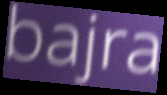
bajra